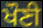
ਖੌਣੀ